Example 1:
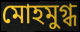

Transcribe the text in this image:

মোহমুগ্ধ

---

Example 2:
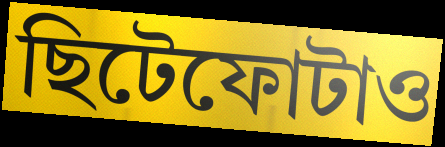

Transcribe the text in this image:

ছিটেফোটাও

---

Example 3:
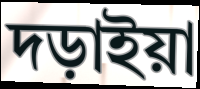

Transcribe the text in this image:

দড়াইয়া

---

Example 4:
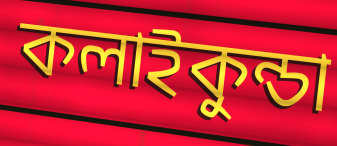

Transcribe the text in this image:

কলাইকুন্ডা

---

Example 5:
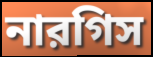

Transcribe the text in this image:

নারগিস